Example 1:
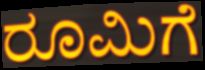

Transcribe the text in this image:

ರೂಮಿಗೆ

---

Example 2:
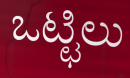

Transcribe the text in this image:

ಒಟ್ಟಿಲು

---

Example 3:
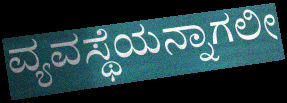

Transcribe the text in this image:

ವ್ಯವಸ್ಥೆಯನ್ನಾಗಲೀ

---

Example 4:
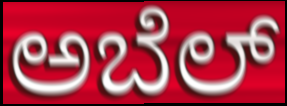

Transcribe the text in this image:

ಅಬೆಲ್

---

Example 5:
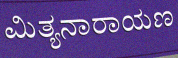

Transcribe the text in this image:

ಮಿತ್ಯನಾರಾಯಣ